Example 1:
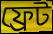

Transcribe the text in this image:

ফ্রেট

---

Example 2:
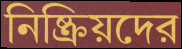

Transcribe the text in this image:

নিষ্ক্রিয়দের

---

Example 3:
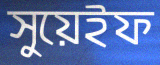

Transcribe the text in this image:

সুয়েইফ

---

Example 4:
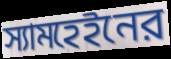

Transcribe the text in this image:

স্যামহেইনের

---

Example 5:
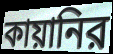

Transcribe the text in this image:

কায়ানির